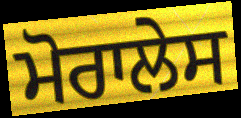
ਮੋਰਾਲੇਸ